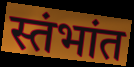
स्तंभांत